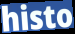
histo